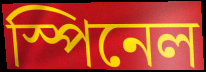
স্পিনেল